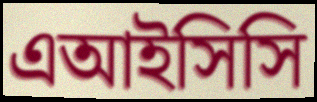
এআইসিসি